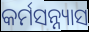
କର୍ମସନ୍ନ୍ୟାସ